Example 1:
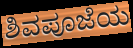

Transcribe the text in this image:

ಶಿವಪೂಜೆಯ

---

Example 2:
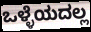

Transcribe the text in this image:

ಒಳ್ಳೆಯದಲ್ಲ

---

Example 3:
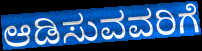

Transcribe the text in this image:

ಆಡಿಸುವವರಿಗೆ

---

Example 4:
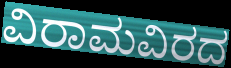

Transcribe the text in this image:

ವಿರಾಮವಿರದ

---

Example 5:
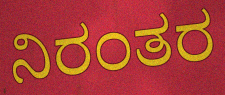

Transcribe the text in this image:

ನಿರಂತರ